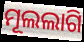
ମୂଲଲାଗି